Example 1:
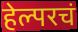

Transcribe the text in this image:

हेल्परचं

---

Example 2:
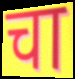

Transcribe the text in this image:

चा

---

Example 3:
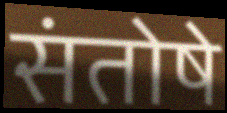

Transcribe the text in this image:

संतोषे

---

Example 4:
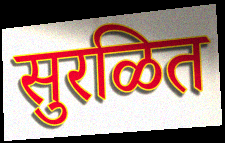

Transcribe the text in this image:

सुरळित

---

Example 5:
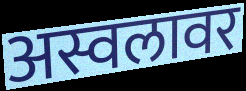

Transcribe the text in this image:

अस्वलावर